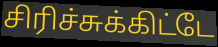
சிரிச்சுக்கிட்டே